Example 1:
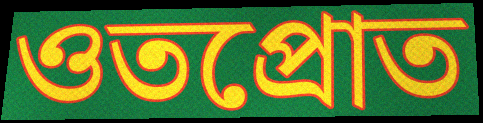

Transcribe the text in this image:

ওতপ্রোত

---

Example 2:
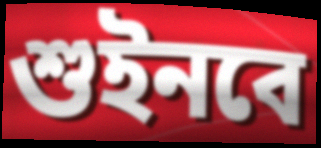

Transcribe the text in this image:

শুইনবে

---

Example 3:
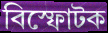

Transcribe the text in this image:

বিস্ফোটক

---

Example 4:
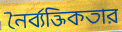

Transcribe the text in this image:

নৈর্ব্যক্তিকতার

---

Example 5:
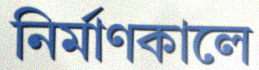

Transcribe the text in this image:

নির্মাণকালে